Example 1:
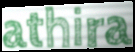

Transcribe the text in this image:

athira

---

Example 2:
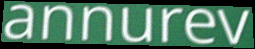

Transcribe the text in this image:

annurev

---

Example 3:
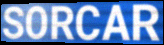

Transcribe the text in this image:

SORCAR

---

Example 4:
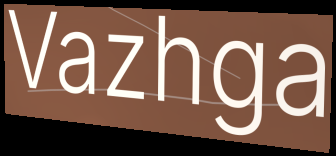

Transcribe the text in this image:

Vazhga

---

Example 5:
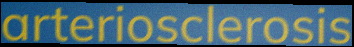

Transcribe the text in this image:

arteriosclerosis